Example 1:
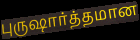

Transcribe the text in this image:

புருஷார்த்தமான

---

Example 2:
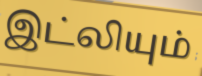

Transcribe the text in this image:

இட்லியும்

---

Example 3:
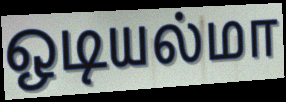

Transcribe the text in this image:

ஒடியல்மா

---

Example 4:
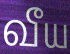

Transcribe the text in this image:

வீய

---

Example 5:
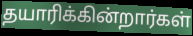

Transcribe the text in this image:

தயாரிக்கின்றார்கள்